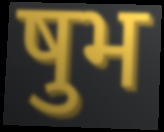
षुभ